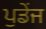
ਪੁਡੇਂਜ